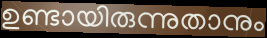
ഉണ്ടായിരുന്നുതാനും